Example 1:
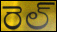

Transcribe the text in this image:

రెల్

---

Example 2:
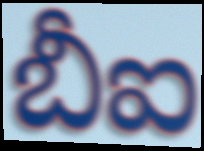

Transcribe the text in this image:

బీఐ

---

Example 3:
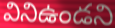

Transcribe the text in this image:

వినిఉండని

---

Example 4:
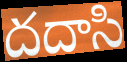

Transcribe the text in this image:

దదాసి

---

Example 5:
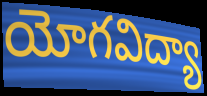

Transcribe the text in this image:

యోగవిద్యా